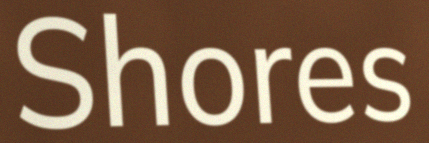
Shores